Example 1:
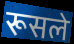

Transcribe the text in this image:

रूसले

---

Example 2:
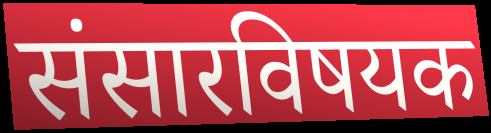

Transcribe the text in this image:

संसारविषयक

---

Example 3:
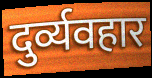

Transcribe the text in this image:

दुर्व्यवहार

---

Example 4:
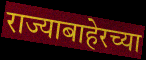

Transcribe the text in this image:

राज्याबाहेरच्या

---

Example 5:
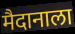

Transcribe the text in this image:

मैदानाला